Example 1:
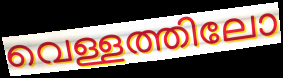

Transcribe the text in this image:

വെള്ളത്തിലോ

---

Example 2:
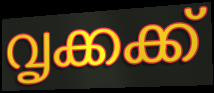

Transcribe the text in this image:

വൃക്കക്ക്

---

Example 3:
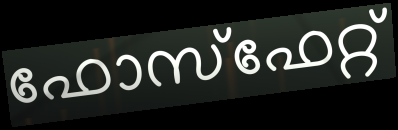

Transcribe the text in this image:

ഫോസ്ഫേറ്റ്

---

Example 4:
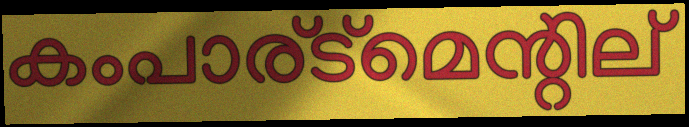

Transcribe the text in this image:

കംപാര്ട്മെന്റില്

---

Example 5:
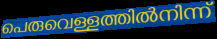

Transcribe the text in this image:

പെരുവെള്ളത്തിൽനിന്ന്